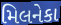
મિલનેકા